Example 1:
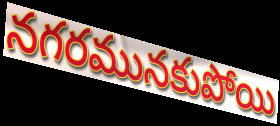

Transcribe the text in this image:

నగరమునకుపోయి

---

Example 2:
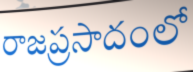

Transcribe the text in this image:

రాజప్రసాదంలో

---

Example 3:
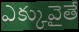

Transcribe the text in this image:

ఎక్కువైతే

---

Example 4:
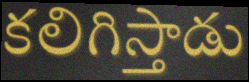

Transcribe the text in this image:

కలిగిస్తాడు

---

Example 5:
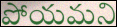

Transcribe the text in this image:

పోయమని